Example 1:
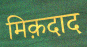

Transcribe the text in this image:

मिक़दाद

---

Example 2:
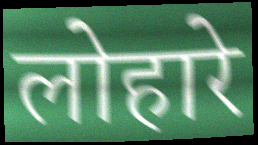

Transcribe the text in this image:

लोहारे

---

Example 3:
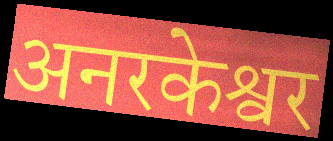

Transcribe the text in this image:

अनरकेश्वर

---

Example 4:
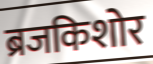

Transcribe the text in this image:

ब्रजकिशोर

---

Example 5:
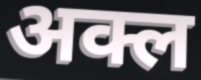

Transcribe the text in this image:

अक्ल